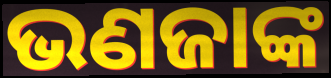
ଭଣଜାଙ୍କ